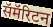
सॅमॅरिटन